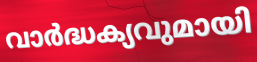
വാർദ്ധക്യവുമായി